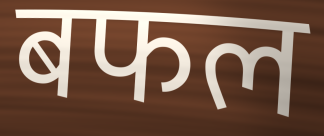
बफल